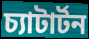
চ্যাটার্টন